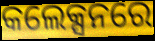
କଲେକ୍ସନରେ